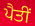
ਪੈਤੀਂ